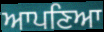
ਆਪਣਿਆ